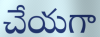
చేయగా